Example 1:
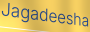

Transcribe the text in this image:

Jagadeesha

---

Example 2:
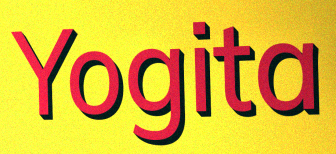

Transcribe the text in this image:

Yogita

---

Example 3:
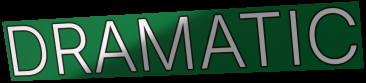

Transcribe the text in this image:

DRAMATIC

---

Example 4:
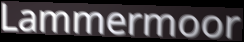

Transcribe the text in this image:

Lammermoor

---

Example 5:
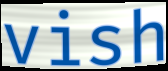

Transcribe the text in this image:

vish